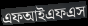
এফআইএফএস